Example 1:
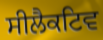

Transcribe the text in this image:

ਸੀਲੈਕਟਿਵ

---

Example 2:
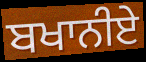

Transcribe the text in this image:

ਬਖਾਨੀਏ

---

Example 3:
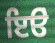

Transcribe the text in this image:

ਇੳਂ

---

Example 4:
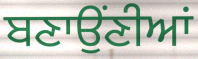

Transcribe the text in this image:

ਬਣਾਉਂਣੀਆਂ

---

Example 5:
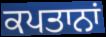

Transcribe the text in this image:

ਕਪਤਾਨਾਂ